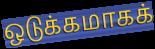
ஒடுக்கமாகக்